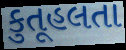
કુતૂહલતા